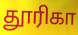
தூரிகா